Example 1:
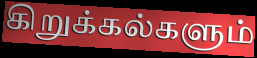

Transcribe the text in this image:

கிறுக்கல்களும்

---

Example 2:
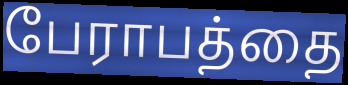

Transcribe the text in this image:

பேராபத்தை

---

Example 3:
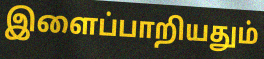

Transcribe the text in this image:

இளைப்பாறியதும்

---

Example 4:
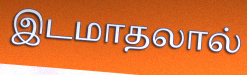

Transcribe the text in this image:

இடமாதலால்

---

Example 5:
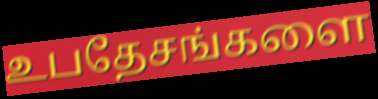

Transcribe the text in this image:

உபதேசங்களை